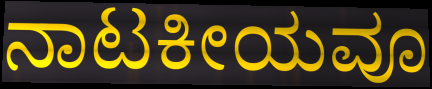
ನಾಟಕೀಯವೂ